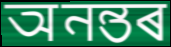
অনন্তৰ